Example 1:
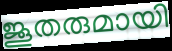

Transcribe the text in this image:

ജൂതരുമായി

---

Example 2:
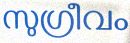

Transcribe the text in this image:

സുഗ്രീവം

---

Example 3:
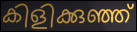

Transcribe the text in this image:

കിളിക്കുഞ്ഞ്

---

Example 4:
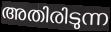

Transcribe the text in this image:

അതിരിടുന്ന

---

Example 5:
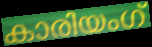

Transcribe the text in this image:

കാരിയംഗ്